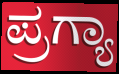
ಪ್ರಗ್ಯಾ